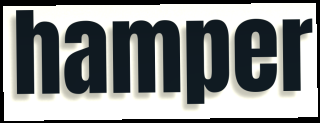
hamper